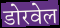
डोरवेल